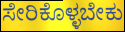
ಸೇರಿಕೊಳ್ಳಬೇಕು